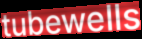
tubewells